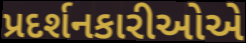
પ્રદર્શનકારીઓએ